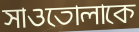
সাওতোলাকে